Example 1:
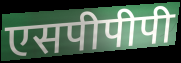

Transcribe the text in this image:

एसपीपीपी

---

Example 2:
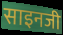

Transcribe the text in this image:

साइनजी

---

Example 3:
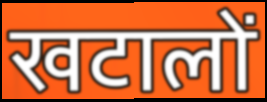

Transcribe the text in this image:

खटालों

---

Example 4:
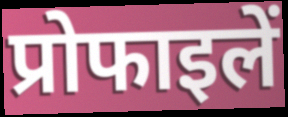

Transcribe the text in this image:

प्रोफाइलें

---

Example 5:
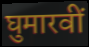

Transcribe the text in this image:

घुमारवीं